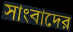
সাংবাদের